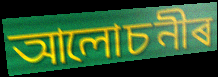
আলোচনীৰ